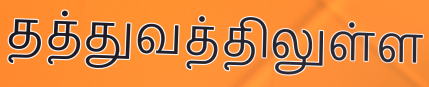
தத்துவத்திலுள்ள